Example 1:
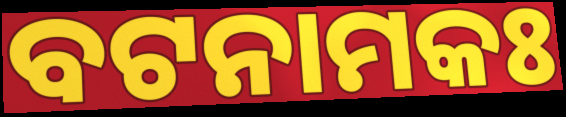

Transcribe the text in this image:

ବଟନାମକଃ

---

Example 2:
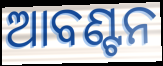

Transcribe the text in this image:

ଆବଣ୍ଟନ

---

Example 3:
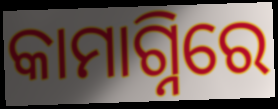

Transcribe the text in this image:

କାମାଗ୍ନିରେ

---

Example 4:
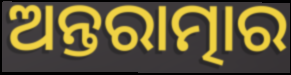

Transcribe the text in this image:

ଅନ୍ତରାତ୍ମାର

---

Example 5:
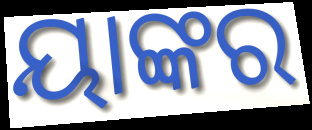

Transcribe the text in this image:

ୟାଙ୍କର